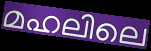
മഹലിലെ